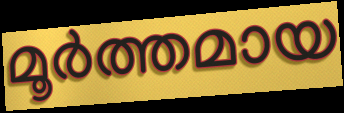
മൂർത്തമായ